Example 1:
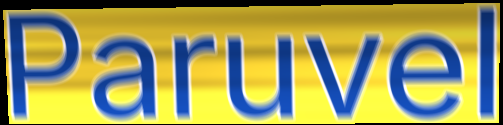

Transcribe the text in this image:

Paruvel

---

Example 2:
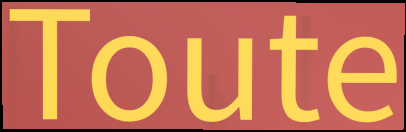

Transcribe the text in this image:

Toute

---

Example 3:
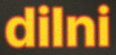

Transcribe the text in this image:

dilni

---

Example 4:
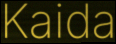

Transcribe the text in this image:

Kaida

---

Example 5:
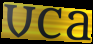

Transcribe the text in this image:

uca